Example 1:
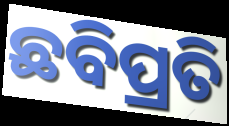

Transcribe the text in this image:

ଛବିପ୍ରତି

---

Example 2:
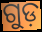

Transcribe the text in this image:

ଗୁଡ଼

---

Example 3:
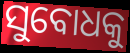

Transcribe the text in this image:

ସୁବୋଧକୁ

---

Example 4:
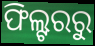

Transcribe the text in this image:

ଫିଲ୍ଟରରୁ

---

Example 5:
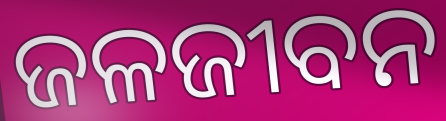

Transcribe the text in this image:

ଜଳଜୀବନ